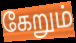
கேறும்